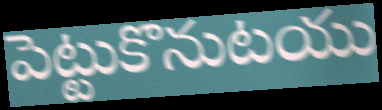
పెట్టుకొనుటయు